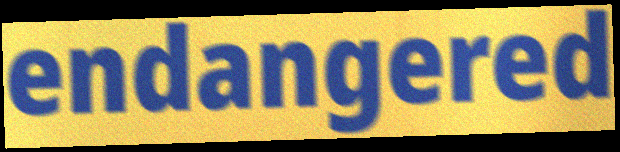
endangered